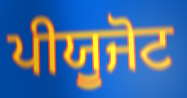
ਪੀਯੂਜੋਟ